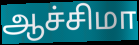
ஆச்சிமா